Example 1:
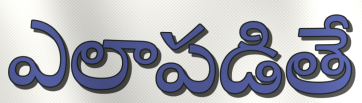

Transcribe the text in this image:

ఎలాపడితే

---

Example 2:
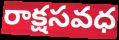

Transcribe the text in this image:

రాక్షసవధ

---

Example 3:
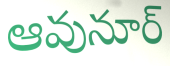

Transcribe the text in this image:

ఆవునూర్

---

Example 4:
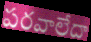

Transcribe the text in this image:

పరవాలేదా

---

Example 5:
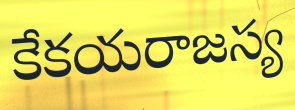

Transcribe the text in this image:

కేకయరాజస్య